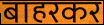
बाहरकर